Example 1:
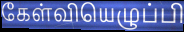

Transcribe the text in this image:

கேள்வியெழுப்பி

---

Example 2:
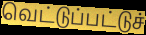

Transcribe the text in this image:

வெட்டுப்பட்டுச்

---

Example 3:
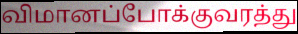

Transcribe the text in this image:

விமானப்போக்குவரத்து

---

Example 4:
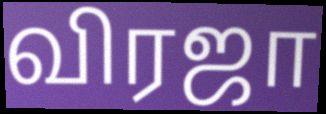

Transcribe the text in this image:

விரஜா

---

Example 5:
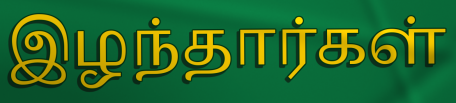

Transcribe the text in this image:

இழந்தார்கள்